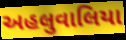
અહલુવાલિયા